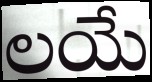
లయే